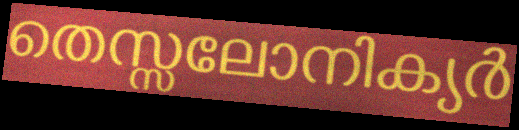
തെസ്സലോനിക്യർ